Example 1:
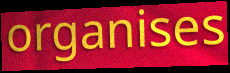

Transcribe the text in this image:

organises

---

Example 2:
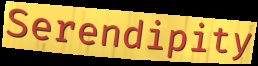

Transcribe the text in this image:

Serendipity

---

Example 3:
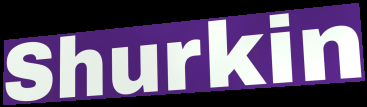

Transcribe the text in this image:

Shurkin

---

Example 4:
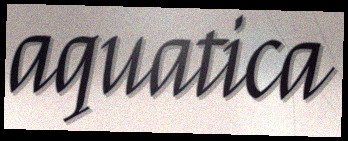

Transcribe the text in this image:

aquatica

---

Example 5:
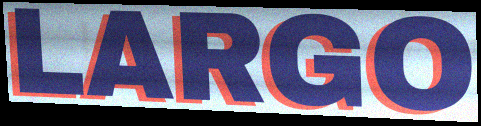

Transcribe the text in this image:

LARGO